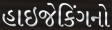
હાઇજેકિંગનો